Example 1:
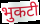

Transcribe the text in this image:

भुकटी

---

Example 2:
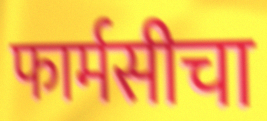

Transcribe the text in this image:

फार्मसीचा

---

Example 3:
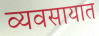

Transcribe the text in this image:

व्यवसायात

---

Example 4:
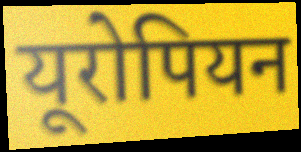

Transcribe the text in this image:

यूरोपियन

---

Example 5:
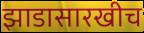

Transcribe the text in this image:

झाडासारखीच